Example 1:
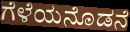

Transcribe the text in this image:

ಗೆಳೆಯನೊಡನೆ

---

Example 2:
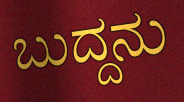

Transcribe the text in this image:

ಬುದ್ದನು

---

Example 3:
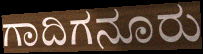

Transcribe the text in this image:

ಗಾದಿಗನೂರು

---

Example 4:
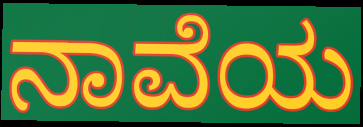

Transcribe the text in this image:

ನಾವೆಯ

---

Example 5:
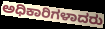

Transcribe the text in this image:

ಅಧಿಕಾರಿಗಳಾದರು